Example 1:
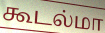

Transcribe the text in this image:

கூடல்மா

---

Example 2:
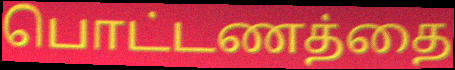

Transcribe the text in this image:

பொட்டணத்தை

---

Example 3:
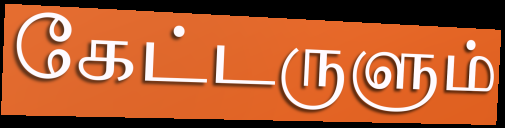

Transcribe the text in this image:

கேட்டருளும்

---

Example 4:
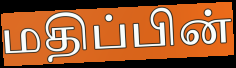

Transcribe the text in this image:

மதிப்பின்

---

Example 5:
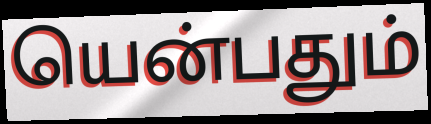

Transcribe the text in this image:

யென்பதும்